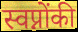
स्वप्नोंकी